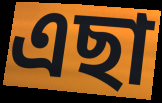
এছা